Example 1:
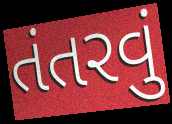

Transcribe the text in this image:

તંતરવું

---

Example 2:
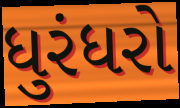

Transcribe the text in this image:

ધુરંધરો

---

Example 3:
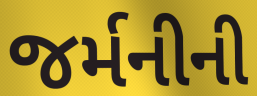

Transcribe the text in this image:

જર્મનીની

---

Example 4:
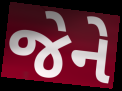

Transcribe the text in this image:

જેને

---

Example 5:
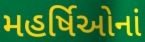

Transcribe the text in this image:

મહર્ષિઓનાં